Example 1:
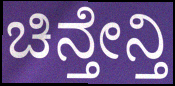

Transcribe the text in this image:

ಚಿನ್ತೇನ್ತಿ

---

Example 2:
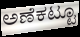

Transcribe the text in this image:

ಅಣೆಕಟ್ಟೂ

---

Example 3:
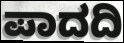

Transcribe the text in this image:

ಪಾದದಿ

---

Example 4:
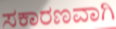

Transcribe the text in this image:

ಸಕಾರಣವಾಗಿ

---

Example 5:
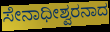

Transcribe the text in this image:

ಸೇನಾಧೀಶ್ವರನಾದ